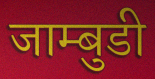
जाम्बुडी